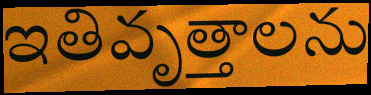
ఇతివృత్తాలను